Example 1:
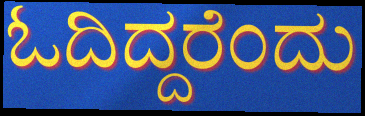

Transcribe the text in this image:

ಓದಿದ್ದರೆಂದು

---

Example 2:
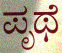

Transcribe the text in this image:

ಪೃಥೆ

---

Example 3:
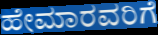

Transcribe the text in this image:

ಹೇಮಾರವರಿಗೆ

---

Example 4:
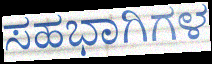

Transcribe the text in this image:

ಸಹಭಾಗಿಗಳ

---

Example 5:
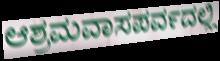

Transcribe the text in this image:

ಆಶ್ರಮವಾಸಪರ್ವದಲ್ಲಿ